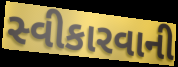
સ્વીકારવાની